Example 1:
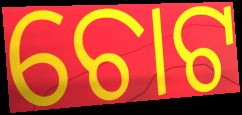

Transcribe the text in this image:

ଚୋଟ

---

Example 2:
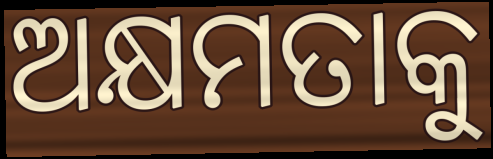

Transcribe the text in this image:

ଅକ୍ଷମତାକୁ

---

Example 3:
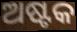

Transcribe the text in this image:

ଅଷ୍ଟକ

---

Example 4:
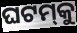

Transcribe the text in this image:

ଘଟମ୍‌କୁ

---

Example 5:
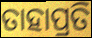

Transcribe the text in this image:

ତାହାପ୍ରତି